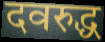
दवरुद्ध